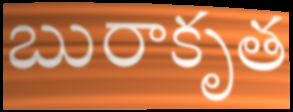
బురాకృత